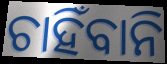
ଚାହିଁବାନି